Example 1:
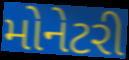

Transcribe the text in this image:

મોનેટરી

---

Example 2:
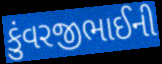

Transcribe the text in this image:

કુંવરજીભાઈની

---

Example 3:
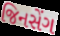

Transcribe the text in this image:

જિનસેંગ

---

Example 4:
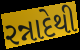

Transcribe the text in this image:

રન્નાદેથી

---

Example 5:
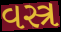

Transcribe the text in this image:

વસ્ત્ર